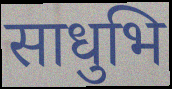
साधुभि